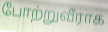
போற்றுவீராக